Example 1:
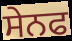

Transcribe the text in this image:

ਸੇਨਫ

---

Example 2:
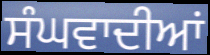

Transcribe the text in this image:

ਸੰਘਵਾਦੀਆਂ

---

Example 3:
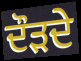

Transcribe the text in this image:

ਦੌੜਦੇ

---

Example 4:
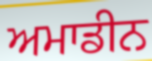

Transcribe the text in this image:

ਅਮਾਡੀਨ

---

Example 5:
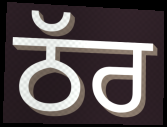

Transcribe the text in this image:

ਠੱਰ